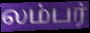
லம்பர்